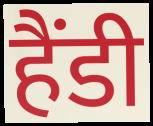
हैंडी